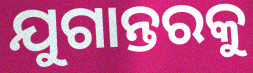
ଯୁଗାନ୍ତରକୁ